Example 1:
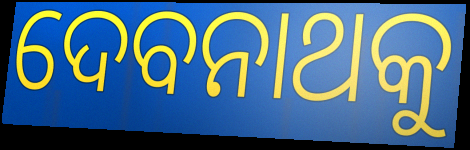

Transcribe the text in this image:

ଦେବନାଥକୁ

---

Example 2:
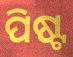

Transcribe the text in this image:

ପିଷ୍ଟ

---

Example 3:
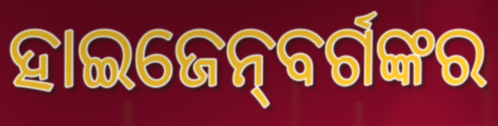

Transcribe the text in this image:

ହାଇଜେନ୍‌ବର୍ଗଙ୍କର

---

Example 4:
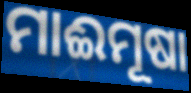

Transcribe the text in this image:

ମାଈମୂଷା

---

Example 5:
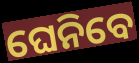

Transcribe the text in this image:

ଘେନିବେ